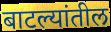
बाटल्यांतील